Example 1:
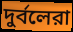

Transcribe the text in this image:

দুর্বলেরা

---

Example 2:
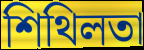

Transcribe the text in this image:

শিথিলতা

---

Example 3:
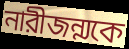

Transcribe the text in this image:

নারীজন্মকে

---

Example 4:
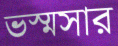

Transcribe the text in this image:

ভস্মসার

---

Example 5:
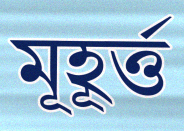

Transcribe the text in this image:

মূহূর্ত্ত